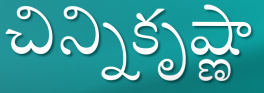
చిన్నికృష్ణా